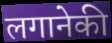
लगानेकी